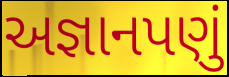
અજ્ઞાનપણું